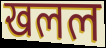
खलल